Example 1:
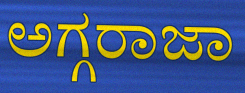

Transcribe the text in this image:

ಅಗ್ಗರಾಜಾ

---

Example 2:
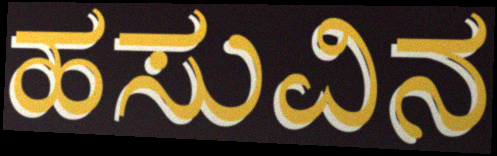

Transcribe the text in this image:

ಹಸುವಿನ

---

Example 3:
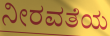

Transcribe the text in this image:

ನೀರವತೆಯ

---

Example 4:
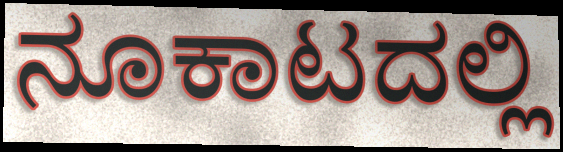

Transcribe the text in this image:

ನೂಕಾಟದಲ್ಲಿ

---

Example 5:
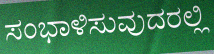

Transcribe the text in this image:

ಸಂಭಾಳಿಸುವುದರಲ್ಲಿ